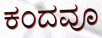
ಕಂದವೂ